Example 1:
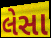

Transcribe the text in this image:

લેસા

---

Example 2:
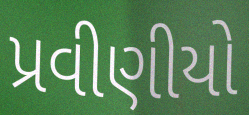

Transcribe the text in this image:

પ્રવીણીયો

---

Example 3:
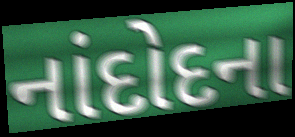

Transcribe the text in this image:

નાંદોદના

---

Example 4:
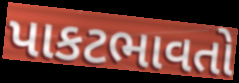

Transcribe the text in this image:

પાકટભાવતો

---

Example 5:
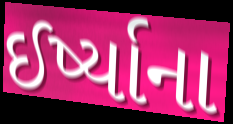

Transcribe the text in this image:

ઈર્ષ્યાના